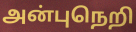
அன்புநெறி